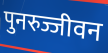
पुनरुज्जीवन